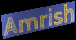
Amrish